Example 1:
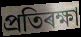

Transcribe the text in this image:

প্ৰতিৰক্ষা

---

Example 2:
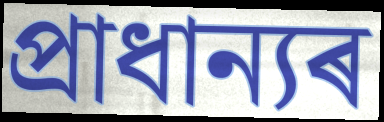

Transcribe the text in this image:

প্ৰাধান্যৰ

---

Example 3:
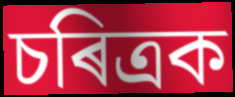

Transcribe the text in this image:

চৰিত্ৰক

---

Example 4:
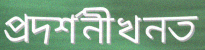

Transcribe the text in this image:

প্ৰদৰ্শনীখনত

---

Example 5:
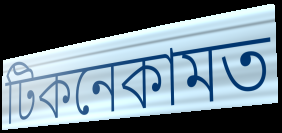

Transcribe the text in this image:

টিকনেকামত